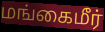
மங்கைமீர்